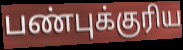
பண்புக்குரிய